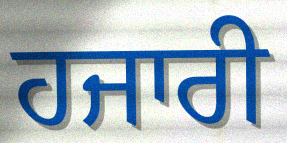
ਹਜਾਰੀ